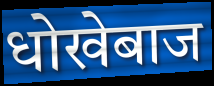
धोखेबाज